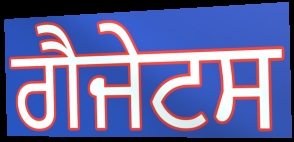
ਗੈਜੇਟਸ